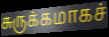
சுருக்கமாகச்